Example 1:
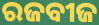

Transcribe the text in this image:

ରଜବୀଜ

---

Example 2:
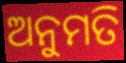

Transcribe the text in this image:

ଅନୁମତି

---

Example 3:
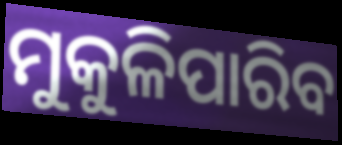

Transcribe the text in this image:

ମୁକୁଳିପାରିବ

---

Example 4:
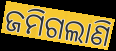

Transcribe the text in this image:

ଜମିଗଲାଣି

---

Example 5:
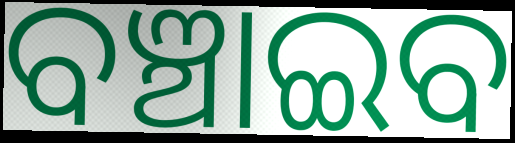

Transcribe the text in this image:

ବଞ୍ଚାଇବ